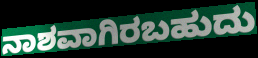
ನಾಶವಾಗಿರಬಹುದು